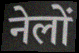
नेलों